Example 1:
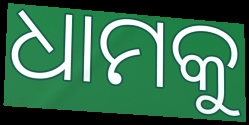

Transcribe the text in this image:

ଧାମକୁ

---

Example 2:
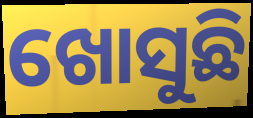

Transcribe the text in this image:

ଖୋସୁଛି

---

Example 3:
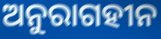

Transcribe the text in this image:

ଅନୁରାଗହୀନ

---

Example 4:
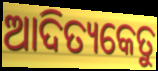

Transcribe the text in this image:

ଆଦିତ୍ୟକେତୁ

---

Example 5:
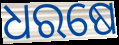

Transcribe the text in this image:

ଧରଷେ